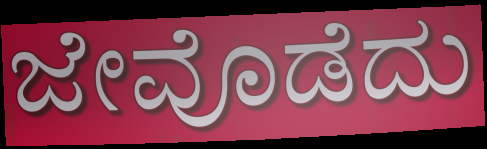
ಜೇವೊಡೆದು